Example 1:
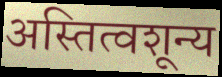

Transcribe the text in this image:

अस्तित्वशून्य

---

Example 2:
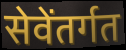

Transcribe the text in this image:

सेवेंतर्गत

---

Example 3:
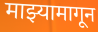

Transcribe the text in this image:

माझ्यामागून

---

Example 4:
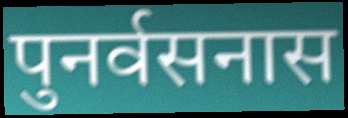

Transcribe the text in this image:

पुनर्वसनास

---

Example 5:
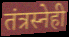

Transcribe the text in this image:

तंत्रस्नेही